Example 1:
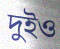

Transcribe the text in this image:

দুইও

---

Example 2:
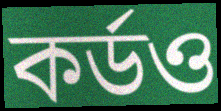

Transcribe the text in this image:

কর্ডও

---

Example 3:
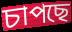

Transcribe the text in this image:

চাপছে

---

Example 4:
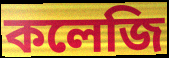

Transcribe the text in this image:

কলেজি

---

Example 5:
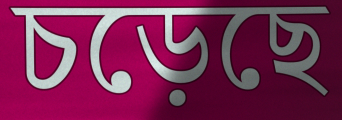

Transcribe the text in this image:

চড়েছে